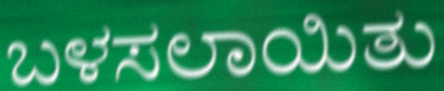
ಬಳಸಲಾಯಿತು